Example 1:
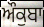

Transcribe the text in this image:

ਔਕੁਬਾ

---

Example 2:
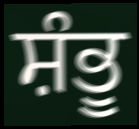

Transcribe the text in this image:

ਸ਼ੰਭੂ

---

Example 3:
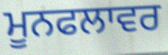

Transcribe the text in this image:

ਮੂਨਫਲਾਵਰ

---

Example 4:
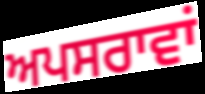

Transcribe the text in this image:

ਅਪਸਰਾਵਾਂ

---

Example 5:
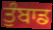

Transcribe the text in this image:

ਤੁੰਬਾਡ